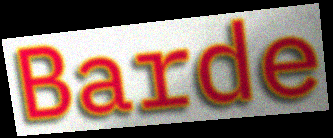
Barde